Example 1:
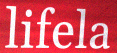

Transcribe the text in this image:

lifela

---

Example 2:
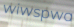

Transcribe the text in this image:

wiwspwa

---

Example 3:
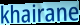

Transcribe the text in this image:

khairane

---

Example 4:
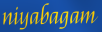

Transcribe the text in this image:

niyabagam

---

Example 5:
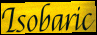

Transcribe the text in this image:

Isobaric